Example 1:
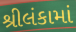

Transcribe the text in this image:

શ્રીલંકામાં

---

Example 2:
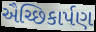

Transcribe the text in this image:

ઐચ્છિકાર્પણ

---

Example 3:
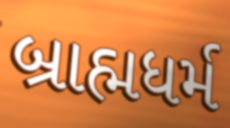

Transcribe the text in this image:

બ્રાહ્મધર્મ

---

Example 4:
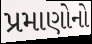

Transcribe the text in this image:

પ્રમાણોનો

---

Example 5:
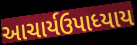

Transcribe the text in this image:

આચાર્યઉપાધ્યાય